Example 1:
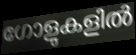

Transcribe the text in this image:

ഗോളുകളിൽ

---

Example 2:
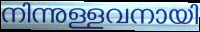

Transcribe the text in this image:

നിന്നുള്ളവനായി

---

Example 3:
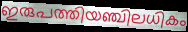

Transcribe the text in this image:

ഇരുപത്തിയഞ്ചിലധികം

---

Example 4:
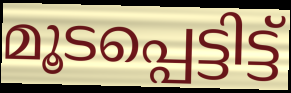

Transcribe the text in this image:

മൂടപ്പെട്ടിട്ട്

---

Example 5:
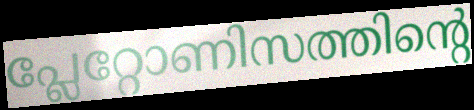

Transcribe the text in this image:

പ്ലേറ്റോണിസത്തിന്റെ